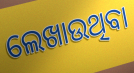
ଲେଖାଉଥିବା